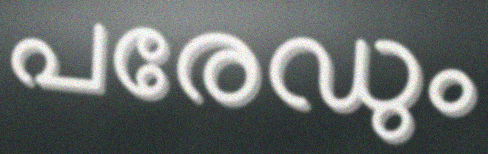
പരേഡും